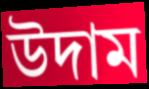
উদাম